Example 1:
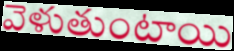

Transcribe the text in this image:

వెళుతుంటాయి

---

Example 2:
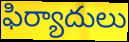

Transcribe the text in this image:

ఫిర్యాదులు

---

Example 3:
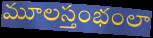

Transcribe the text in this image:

మూలస్తంభంలా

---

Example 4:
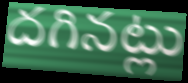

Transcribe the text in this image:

దగినట్లు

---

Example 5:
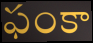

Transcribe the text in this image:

ఫంకా